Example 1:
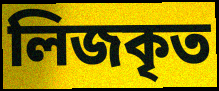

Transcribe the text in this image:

লিজকৃত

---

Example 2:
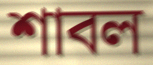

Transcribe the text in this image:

শাবল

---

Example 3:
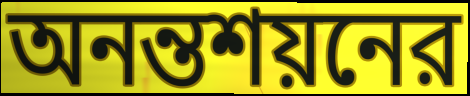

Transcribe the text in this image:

অনন্তশয়নের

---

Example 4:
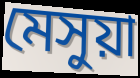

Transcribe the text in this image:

মেসুয়া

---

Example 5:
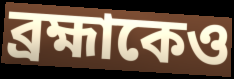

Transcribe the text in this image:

ব্রহ্মাকেও